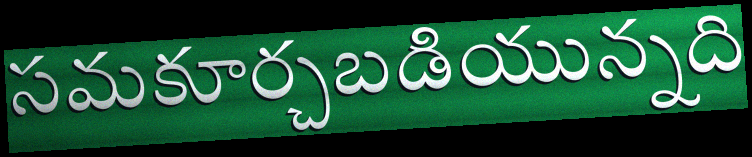
సమకూర్చబడియున్నది